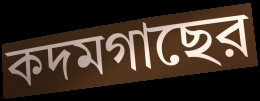
কদমগাছের